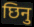
छिनु